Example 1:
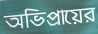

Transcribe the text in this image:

অভিপ্রায়ের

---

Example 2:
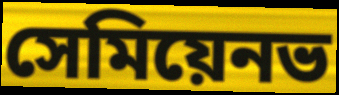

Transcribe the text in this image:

সেমিয়েনভ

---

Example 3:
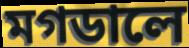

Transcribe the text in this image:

মগডালে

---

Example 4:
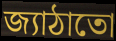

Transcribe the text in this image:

জ্যাঠাতো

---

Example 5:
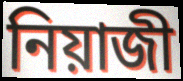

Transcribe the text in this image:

নিয়াজী